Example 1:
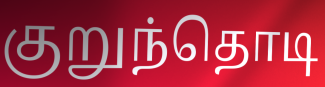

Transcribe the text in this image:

குறுந்தொடி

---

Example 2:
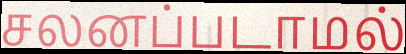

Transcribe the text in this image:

சலனப்படாமல்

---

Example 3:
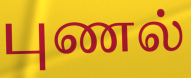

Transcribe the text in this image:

புணல்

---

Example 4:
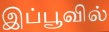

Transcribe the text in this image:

இப்பூவில்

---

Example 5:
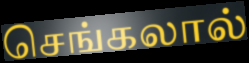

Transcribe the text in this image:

செங்கலால்